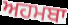
ਅਹਮਬਾ